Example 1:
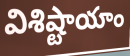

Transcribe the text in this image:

విశిష్టాయాం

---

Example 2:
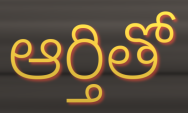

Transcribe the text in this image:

ఆర్తితో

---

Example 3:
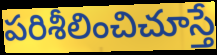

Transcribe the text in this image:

పరిశీలించిచూస్తే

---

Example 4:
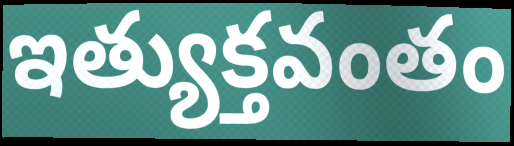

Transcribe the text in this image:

ఇత్యుక్తవంతం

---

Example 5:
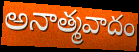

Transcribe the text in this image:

అనాత్మవాదం